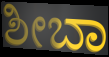
ಶೀಬಾ